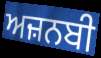
ਅਜ਼ਨਬੀ